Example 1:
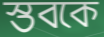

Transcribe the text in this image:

স্তবকে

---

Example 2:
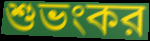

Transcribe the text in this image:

শুভংকর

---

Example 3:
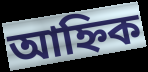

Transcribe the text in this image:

আহ্নিক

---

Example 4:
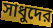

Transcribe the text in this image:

সাধুদের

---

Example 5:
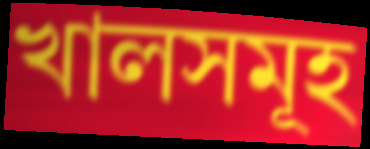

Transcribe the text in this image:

খালসমূহ